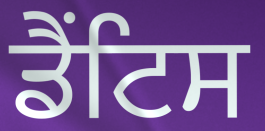
ਡੈਂਟਿਸ